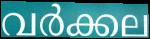
വർക്കല